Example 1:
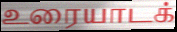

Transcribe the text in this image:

உரையாடக்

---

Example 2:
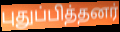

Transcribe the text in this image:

புதுப்பித்தனர்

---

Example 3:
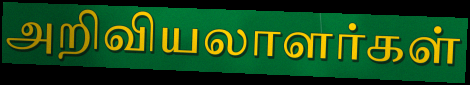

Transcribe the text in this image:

அறிவியலாளர்கள்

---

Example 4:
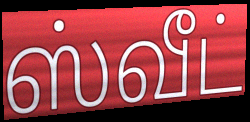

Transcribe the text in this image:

ஸ்வீட்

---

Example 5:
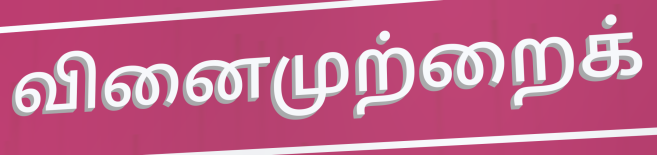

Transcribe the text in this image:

வினைமுற்றைக்